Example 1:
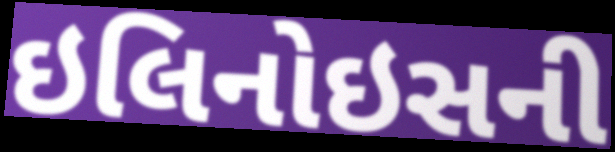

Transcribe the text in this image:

ઇલિનોઇસની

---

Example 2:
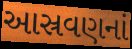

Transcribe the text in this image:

આસ્રવણનાં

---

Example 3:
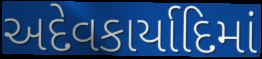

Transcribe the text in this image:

અદેવકાર્યાદિમાં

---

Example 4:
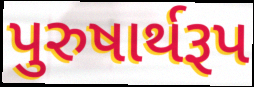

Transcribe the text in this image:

પુરુષાર્થરૂપ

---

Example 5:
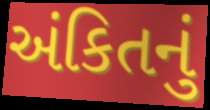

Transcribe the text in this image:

અંકિતનું